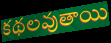
కథలవుతాయి